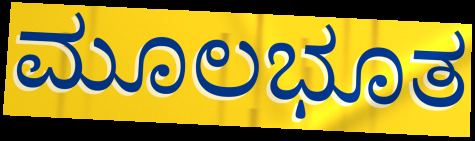
ಮೂಲಭೂತ